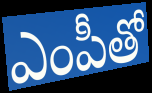
ఎంపీతో